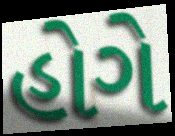
હોગે